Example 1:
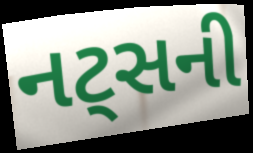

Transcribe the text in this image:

નટ્સની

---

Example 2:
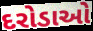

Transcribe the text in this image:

દરોડાઓ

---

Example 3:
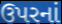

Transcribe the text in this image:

ઉપરનાં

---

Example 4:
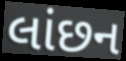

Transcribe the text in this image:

લાંછન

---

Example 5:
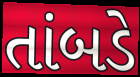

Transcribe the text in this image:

તાંબડે